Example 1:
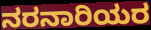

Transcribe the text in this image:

ನರನಾರಿಯರ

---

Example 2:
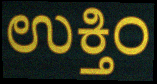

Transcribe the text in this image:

ಉಕ್ತಿಂ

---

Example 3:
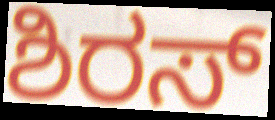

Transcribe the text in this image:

ಶಿರಸ್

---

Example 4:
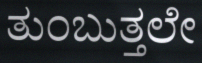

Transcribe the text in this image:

ತುಂಬುತ್ತಲೇ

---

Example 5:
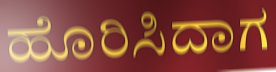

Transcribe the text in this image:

ಹೊರಿಸಿದಾಗ